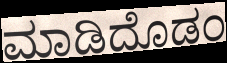
ಮಾಡಿದೊಡಂ